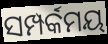
ସମ୍ପର୍କମୟ